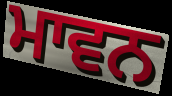
ਮਾਵਨ